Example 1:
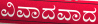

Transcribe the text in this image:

ವಿವಾದವಾದ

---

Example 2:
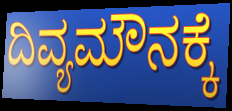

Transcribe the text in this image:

ದಿವ್ಯಮೌನಕ್ಕೆ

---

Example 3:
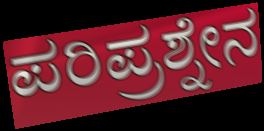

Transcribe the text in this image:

ಪರಿಪ್ರಶ್ನೇನ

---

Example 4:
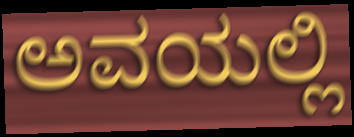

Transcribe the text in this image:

ಅವಯಲ್ಲಿ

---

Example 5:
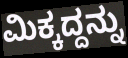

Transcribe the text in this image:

ಮಿಕ್ಕದ್ದನ್ನು